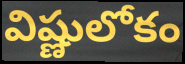
విష్ణులోకం